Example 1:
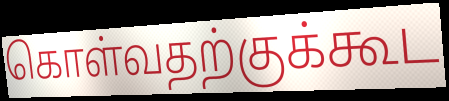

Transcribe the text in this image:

கொள்வதற்குக்கூட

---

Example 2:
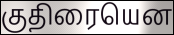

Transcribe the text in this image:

குதிரையென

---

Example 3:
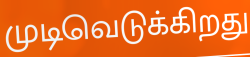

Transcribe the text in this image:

முடிவெடுக்கிறது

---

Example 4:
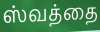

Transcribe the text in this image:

ஸ்வத்தை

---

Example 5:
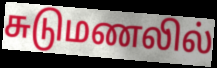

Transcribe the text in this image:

சுடுமணலில்